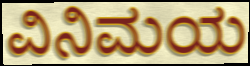
ವಿನಿಮಯ